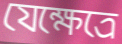
যেক্ষেত্রে